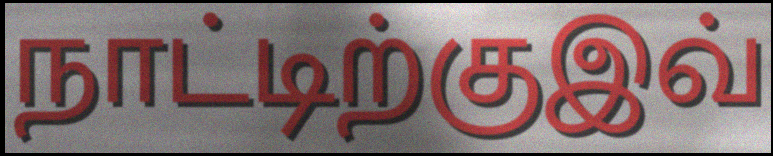
நாட்டிற்குஇவ்